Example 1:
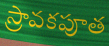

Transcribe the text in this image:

స్రావకపూత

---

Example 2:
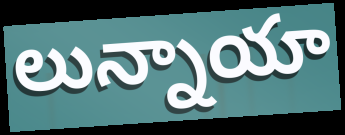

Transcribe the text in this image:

లున్నాయా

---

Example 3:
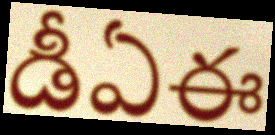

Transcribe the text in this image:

డీఏఈ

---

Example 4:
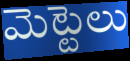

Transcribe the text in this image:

మెట్టెలు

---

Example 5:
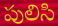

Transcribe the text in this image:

పులిసి